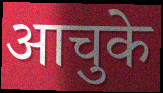
आचुके